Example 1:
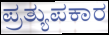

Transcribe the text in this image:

ಪ್ರತ್ಯುಪಕಾರ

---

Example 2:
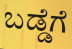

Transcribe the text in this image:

ಬಡ್ಡೆಗೆ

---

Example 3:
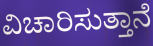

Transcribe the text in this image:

ವಿಚಾರಿಸುತ್ತಾನೆ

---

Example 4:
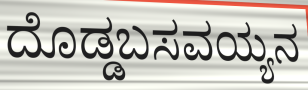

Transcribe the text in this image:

ದೊಡ್ಡಬಸವಯ್ಯನ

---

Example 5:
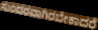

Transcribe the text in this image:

ಸುಂದರವಾಗಿರಬೇಕಾದರೆ